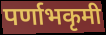
पर्णाभकृमी